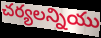
చర్యలన్నియు